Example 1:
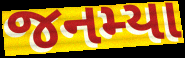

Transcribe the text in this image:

જનમ્યા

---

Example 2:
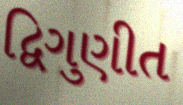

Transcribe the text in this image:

દ્વિગુણીત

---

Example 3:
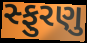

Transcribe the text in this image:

સ્ફુરણુ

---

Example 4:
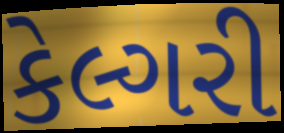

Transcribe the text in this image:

કેલ્ગરી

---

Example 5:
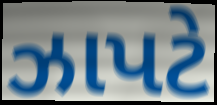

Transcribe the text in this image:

ઝાપટે